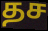
தச